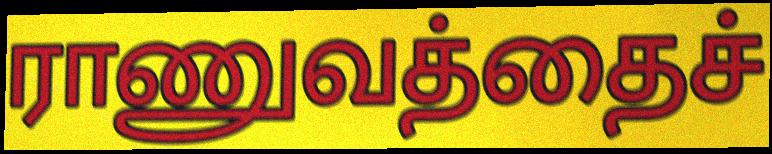
ராணுவத்தைச்